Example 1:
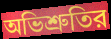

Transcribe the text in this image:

অভিশ্রুতির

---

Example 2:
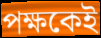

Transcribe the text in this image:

পক্ষকেই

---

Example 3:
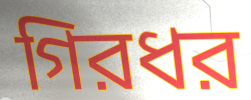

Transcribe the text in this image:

গিরধর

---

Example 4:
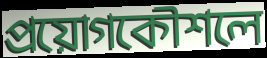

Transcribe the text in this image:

প্রয়োগকৌশলে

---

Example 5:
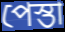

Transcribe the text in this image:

পেস্তা